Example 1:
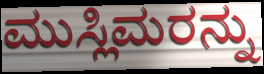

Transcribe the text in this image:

ಮುಸ್ಲಿಮರನ್ನು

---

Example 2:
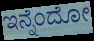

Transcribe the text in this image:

ಇನ್ನೆಂದೋ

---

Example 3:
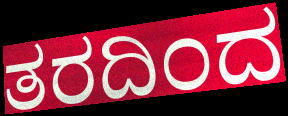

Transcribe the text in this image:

ತರದಿಂದ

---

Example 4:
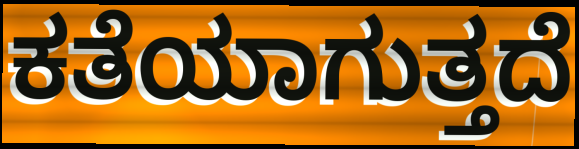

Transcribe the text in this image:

ಕತೆಯಾಗುತ್ತದೆ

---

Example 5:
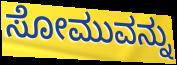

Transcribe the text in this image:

ಸೋಮುವನ್ನು